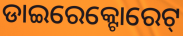
ଡାଇରେକ୍ଟୋରେଟ୍